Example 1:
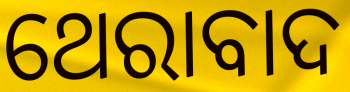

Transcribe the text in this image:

ଥେରାବାଦ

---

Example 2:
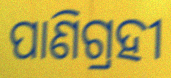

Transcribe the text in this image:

ପାଣିଗ୍ରହୀ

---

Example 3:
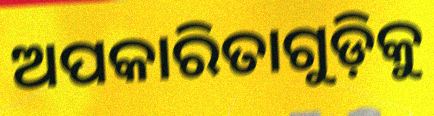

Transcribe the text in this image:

ଅପକାରିତାଗୁଡ଼ିକୁ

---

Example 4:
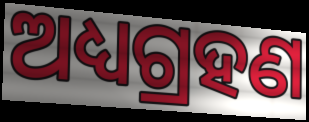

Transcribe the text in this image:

ଅଧ୍ୟଗ୍ରହଣ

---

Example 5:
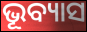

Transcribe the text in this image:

ଭୂବ୍ୟାସ